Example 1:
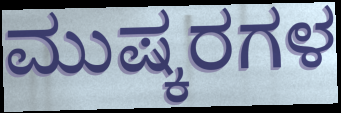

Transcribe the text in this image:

ಮುಷ್ಕರಗಳ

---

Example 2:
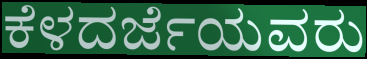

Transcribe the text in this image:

ಕೆಳದರ್ಜೆಯವರು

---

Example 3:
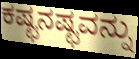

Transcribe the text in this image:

ಕಷ್ಟನಷ್ಟವನ್ನು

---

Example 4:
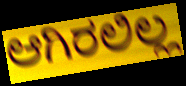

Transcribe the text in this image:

ಆಗಿರಲಿಲ್ಲ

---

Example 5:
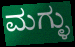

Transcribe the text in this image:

ಮಗ್ಳು